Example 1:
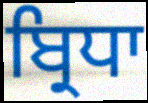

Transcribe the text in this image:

ਬ੍ਰਿਧਾ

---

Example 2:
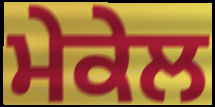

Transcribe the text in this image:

ਮੇਕੇਲ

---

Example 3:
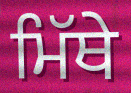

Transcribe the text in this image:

ਮਿੱਥੇ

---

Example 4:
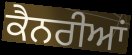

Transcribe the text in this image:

ਕੈਨਰੀਆਂ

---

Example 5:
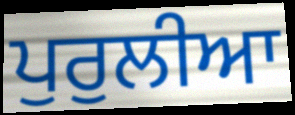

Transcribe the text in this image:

ਪੁਰੁਲੀਆ